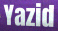
Yazid